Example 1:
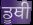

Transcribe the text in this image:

ਡੂਥੀ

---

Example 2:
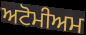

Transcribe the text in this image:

ਅਟੋਮੀਅਮ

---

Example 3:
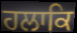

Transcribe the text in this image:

ਹਲਾਕਿ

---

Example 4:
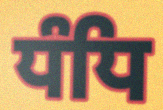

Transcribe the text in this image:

ਧੰਧਿ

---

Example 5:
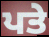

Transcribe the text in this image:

ਪਤੇ